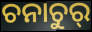
ଚନାଚୁର୍